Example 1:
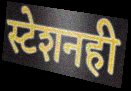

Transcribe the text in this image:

स्टेशनही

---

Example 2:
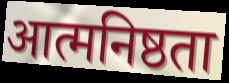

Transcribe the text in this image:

आत्मनिष्ठता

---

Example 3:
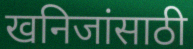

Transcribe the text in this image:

खनिजांसाठी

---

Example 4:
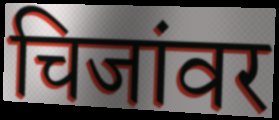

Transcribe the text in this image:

चिजांवर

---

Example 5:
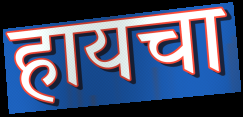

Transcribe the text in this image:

हायचा